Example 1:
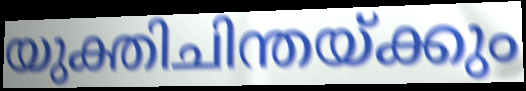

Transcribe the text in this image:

യുക്തിചിന്തയ്ക്കും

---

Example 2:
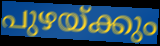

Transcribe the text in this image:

പുഴയ്ക്കും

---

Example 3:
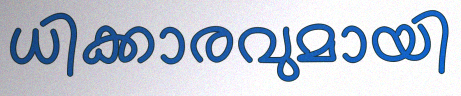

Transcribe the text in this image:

ധിക്കാരവുമായി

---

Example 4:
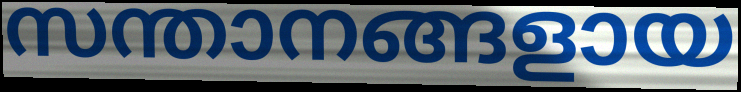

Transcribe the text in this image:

സന്താനങ്ങളായ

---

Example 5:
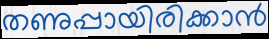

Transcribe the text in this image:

തണുപ്പായിരിക്കാൻ